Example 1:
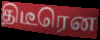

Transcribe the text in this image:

திடீரென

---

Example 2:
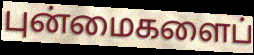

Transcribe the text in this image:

புன்மைகளைப்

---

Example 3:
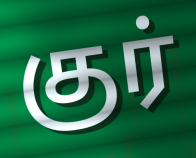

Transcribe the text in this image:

குர்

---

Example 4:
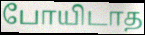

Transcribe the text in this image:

போயிடாத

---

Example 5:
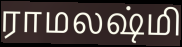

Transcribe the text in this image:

ராமலஷ்மி